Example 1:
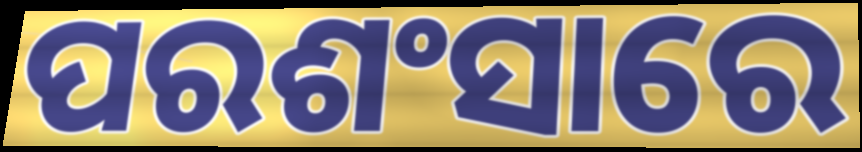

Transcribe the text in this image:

ପରଶଂସାରେ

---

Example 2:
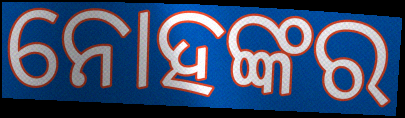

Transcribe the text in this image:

ନୋହଙ୍କର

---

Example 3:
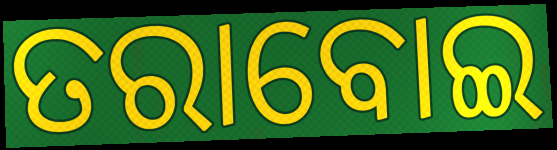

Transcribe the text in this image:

ତରାବୋଇ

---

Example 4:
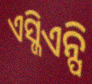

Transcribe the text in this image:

ଏସ୍ଜିଏନ୍ପି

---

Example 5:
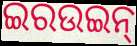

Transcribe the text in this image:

ଇରଉଇନ୍